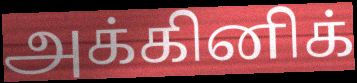
அக்கினிக்